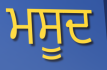
ਮਸੂਦ